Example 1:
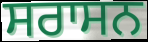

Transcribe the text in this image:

ਸਰਾਸਨ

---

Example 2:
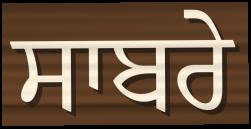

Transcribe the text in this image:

ਸਾਬਰੇ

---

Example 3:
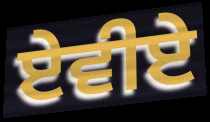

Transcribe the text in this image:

ਏਵੀਏ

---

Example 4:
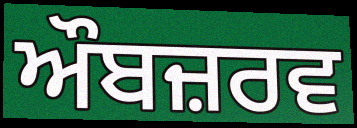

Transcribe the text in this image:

ਔਬਜ਼ਰਵ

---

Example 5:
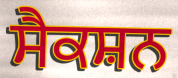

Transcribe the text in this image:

ਸੈਕਸ਼ਨ